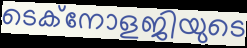
ടെക്നോളജിയുടെ